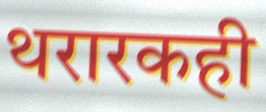
थरारकही